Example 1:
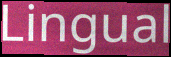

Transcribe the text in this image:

Lingual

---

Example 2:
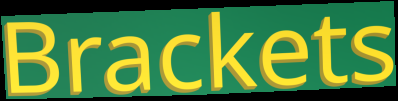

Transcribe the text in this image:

Brackets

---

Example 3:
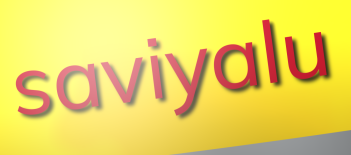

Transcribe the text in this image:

saviyalu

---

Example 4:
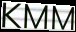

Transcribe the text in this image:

KMM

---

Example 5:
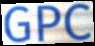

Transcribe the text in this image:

GPC